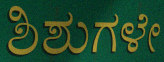
ಶಿಶುಗಳೇ